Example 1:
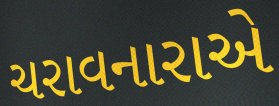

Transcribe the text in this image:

ચરાવનારાએ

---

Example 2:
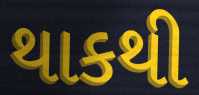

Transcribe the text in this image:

થાકથી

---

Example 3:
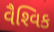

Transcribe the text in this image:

વૈશ્‍વિક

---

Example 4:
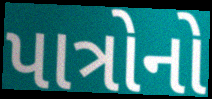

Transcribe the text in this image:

પાત્રોનો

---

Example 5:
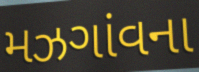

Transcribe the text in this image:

મઝગાંવના